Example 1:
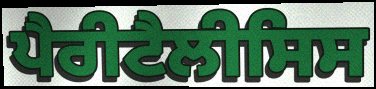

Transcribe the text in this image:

ਪੈਰੀਟੈਲੀਸਿਸ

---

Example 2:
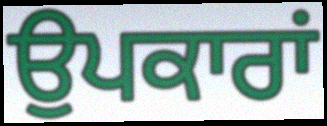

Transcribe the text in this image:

ਉਪਕਾਰਾਂ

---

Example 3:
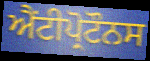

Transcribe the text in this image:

ਐਂਟੀਪ੍ਰੋਟੌਨਸ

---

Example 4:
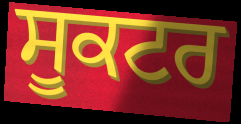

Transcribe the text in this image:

ਸੂਕਟਰ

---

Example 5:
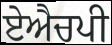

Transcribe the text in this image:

ਏਐਚਪੀ